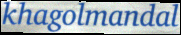
khagolmandal